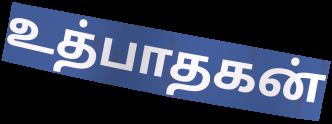
உத்பாதகன்